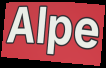
Alpe